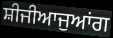
ਸ਼ੀਜੀਆਜੁਆਂਗ